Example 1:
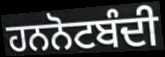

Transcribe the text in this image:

ਹਨਨੋਟਬੰਦੀ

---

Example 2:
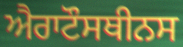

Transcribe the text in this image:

ਐਰਾਟੌਸਥੀਨਸ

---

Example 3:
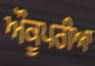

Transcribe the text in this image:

ਔਕੂਪਰੀਆ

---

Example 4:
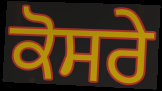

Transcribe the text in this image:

ਕੋਸਰੇ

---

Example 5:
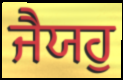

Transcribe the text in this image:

ਜੈਯਹੁ